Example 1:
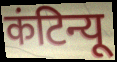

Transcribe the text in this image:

कंटिन्यू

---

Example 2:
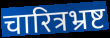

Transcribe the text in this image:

चारित्रभ्रष्ट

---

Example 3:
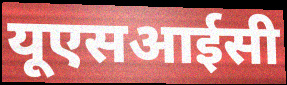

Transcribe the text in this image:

यूएसआईसी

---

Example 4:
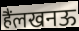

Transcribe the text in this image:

हैंलखनऊ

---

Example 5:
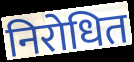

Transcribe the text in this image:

निरोधित